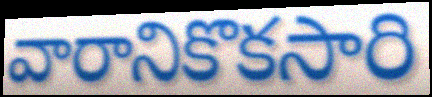
వారానికొకసారి